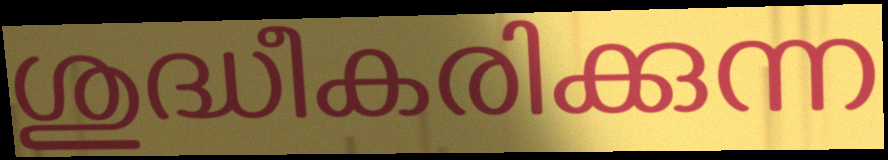
ശുദ്ധീകരിക്കുന്ന